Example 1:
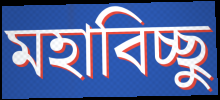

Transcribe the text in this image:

মহাবিচ্ছু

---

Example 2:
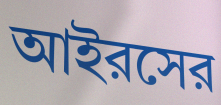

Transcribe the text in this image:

আইরসের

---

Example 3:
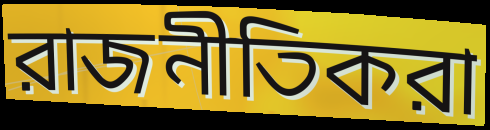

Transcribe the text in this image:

রাজনীতিকরা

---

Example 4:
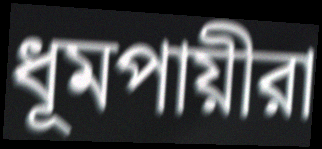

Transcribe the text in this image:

ধূমপায়ীরা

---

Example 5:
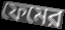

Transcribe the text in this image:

ফেমের